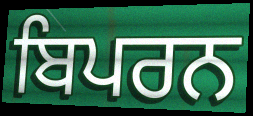
ਬਿਪਰਨ